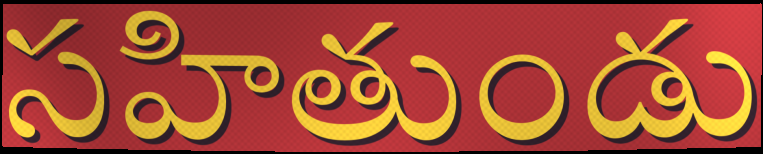
సహితుండు